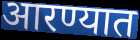
आरण्यात